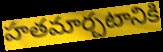
హతమార్చటానికి